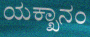
ಯಕ್ಖಾನಂ